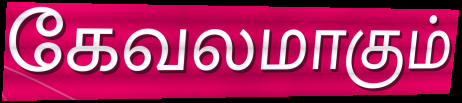
கேவலமாகும்